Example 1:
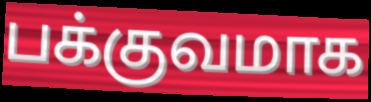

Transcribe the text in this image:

பக்குவமாக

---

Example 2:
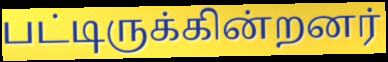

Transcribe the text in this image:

பட்டிருக்கின்றனர்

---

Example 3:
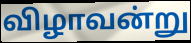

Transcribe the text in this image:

விழாவன்று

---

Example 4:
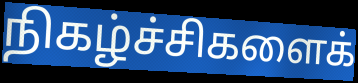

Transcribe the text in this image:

நிகழ்ச்சிகளைக்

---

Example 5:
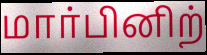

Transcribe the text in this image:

மார்பினிற்